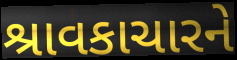
શ્રાવકાચારને